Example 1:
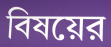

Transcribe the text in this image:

বিষয়ের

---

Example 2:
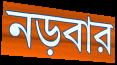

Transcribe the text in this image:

নড়বার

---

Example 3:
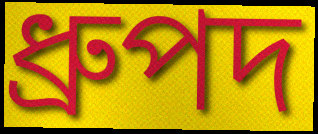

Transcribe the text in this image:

ধ্রুপদ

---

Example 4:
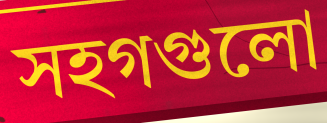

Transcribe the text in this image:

সহগগুলো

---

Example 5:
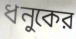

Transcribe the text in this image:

ধনুকের